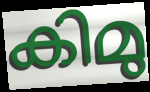
കിമു